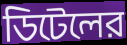
ডিটেলের